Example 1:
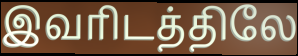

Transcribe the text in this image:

இவரிடத்திலே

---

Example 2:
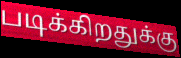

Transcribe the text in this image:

படிக்கிறதுக்கு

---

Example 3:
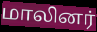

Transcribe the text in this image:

மாலினர்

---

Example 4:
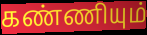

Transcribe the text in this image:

கண்ணியும்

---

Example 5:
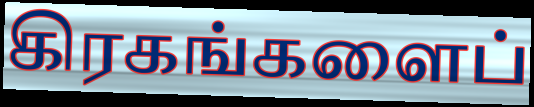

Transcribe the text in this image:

கிரகங்களைப்